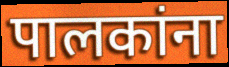
पालकांना